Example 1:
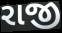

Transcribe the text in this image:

રાજી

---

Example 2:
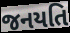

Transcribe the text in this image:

જનયતિ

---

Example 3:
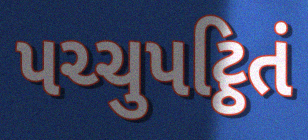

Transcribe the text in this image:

પચ્ચુપટ્ઠિતં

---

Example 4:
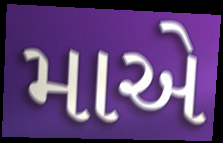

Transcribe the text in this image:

માએ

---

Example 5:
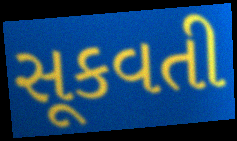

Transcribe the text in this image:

સૂકવતી